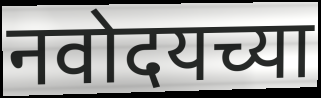
नवोदयच्या